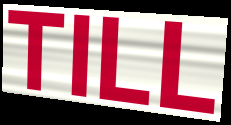
TILL